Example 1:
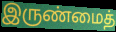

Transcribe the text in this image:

இருண்மைத்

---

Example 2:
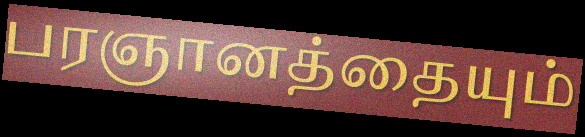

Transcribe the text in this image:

பரஞானத்தையும்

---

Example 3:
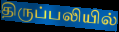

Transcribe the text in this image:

திருப்பலியில்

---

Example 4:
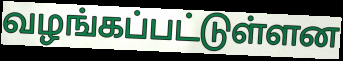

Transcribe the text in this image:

வழங்கப்பட்டுள்ளன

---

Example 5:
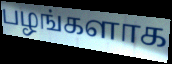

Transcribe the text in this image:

பழங்களாக